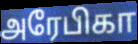
அரேபிகா